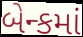
બેન્કમાં